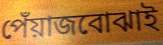
পেঁয়াজবোঝাই